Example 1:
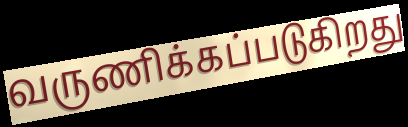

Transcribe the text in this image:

வருணிக்கப்படுகிறது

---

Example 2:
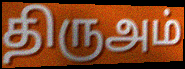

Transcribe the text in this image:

திருஅம்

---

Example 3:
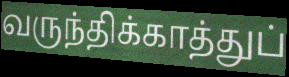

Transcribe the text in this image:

வருந்திக்காத்துப்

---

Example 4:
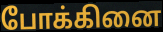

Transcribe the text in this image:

போக்கினை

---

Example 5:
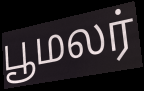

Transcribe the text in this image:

பூமலர்